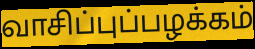
வாசிப்புப்பழக்கம்